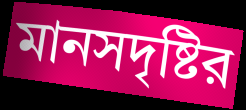
মানসদৃষ্টির